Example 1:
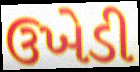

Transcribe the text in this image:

ઉખેડી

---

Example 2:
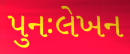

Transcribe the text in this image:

પુનઃલેખન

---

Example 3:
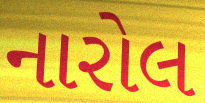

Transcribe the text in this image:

નારોલ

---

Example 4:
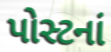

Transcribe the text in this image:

પોસ્ટનાં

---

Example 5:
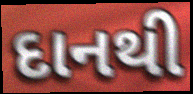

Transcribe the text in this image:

દાનથી